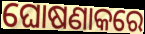
ଘୋଷଣାକରେ